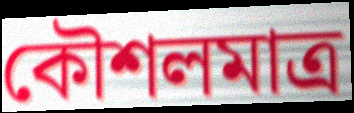
কৌশলমাত্র